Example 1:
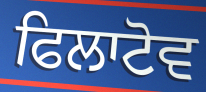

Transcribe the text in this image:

ਫਿਲਾਟੋਵ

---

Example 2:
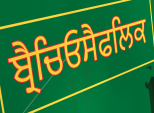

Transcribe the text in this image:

ਬ੍ਰੈਚਿਓਸੈਫਲਿਕ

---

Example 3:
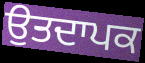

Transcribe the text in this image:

ਉਤਦਾਪਕ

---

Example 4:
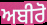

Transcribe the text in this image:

ਅਬੀਰੋ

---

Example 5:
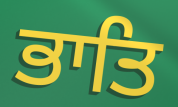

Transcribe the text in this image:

ਭਾਤਿ